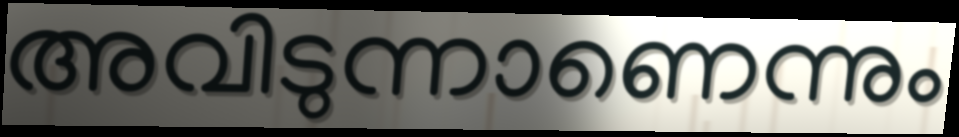
അവിടുന്നാണെന്നും